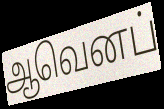
ஆவெனப்